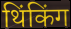
थिंकिंग